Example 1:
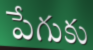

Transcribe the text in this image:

పేగుకు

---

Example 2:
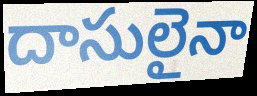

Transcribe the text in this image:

దాసులైనా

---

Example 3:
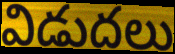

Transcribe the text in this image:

విడుదలు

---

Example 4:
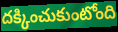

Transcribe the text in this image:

దక్కించుకుంటోంది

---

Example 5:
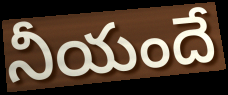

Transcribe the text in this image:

నీయందే